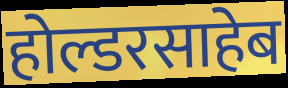
होल्डरसाहेब